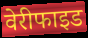
वेरीफाइड